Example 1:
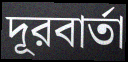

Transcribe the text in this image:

দূরবার্তা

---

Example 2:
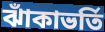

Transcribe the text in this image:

ঝাঁকাভর্তি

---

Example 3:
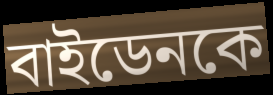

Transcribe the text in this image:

বাইডেনকে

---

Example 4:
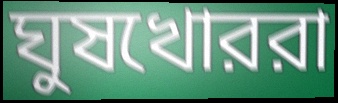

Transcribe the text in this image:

ঘুষখোররা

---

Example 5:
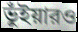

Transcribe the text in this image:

ভুঁইয়ারও